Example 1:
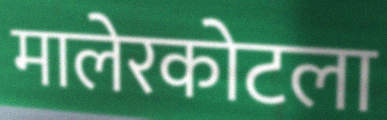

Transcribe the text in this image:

मालेरकोटला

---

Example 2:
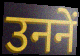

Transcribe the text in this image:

उननें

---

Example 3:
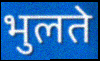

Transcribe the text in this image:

भुलते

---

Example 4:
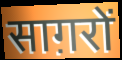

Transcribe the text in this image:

साग़रों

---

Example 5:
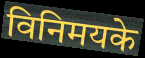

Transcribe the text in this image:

विनिमयके